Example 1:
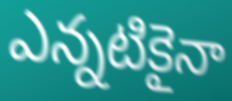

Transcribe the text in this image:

ఎన్నటికైనా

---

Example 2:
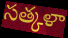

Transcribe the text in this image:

సత్కళా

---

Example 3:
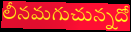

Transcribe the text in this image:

లీనమగుచున్నదో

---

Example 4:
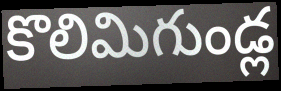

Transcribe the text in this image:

కొలిమిగుండ్ల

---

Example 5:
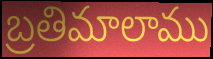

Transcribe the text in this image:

బ్రతిమాలాము